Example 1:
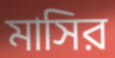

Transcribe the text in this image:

মাসির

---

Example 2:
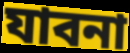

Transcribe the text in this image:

যাবনা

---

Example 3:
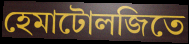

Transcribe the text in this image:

হেমাটোলজিতে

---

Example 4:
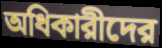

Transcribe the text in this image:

অধিকারীদের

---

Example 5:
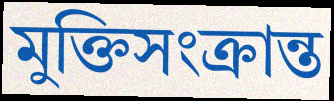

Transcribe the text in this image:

মুক্তিসংক্রান্ত